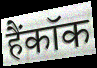
हैंकॉक